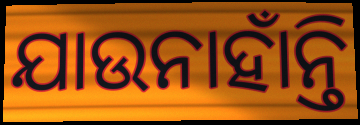
ଯାଉନାହାଁନ୍ତି